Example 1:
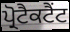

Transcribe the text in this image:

ਪ੍ਰੋਟੈਕਟੈਂਟ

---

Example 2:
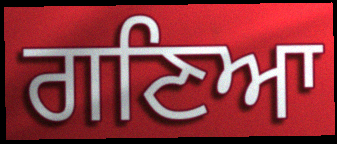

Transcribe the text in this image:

ਗਣਿਆ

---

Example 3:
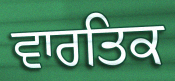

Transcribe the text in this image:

ਵਾਰਤਿਕ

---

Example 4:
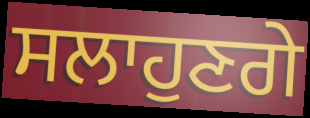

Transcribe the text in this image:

ਸਲਾਹੁਣਗੇ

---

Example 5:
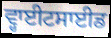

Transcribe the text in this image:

ਵ੍ਹਾਈਟਸਾਈਡ